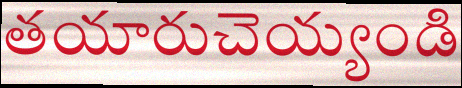
తయారుచెయ్యండి